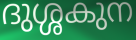
ദുശ്ശകുന